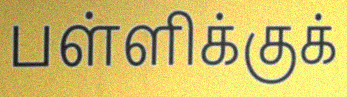
பள்ளிக்குக்